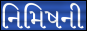
નિમિષની